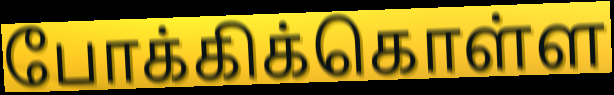
போக்கிக்கொள்ள